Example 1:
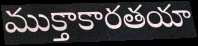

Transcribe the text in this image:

ముక్తాకారతయా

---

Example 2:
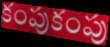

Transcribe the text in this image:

కంపుకంపు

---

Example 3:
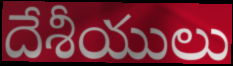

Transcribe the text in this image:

దేశీయులు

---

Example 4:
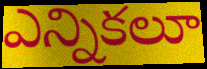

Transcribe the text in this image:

ఎన్నికలూ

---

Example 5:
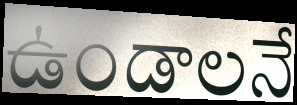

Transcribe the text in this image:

ఉండాలనే